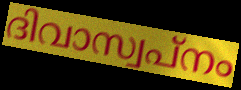
ദിവാസ്വപ്നം